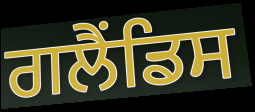
ਗਲੈਂਡਿਸ